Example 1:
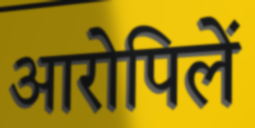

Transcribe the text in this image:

आरोपिलें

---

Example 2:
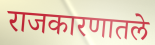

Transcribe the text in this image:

राजकारणातले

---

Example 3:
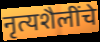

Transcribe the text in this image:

नृत्यशैलींचे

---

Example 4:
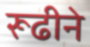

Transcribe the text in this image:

रूढीने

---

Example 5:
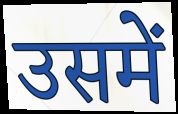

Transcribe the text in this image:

उसमें